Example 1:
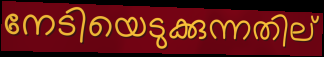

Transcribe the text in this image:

നേടിയെടുക്കുന്നതില്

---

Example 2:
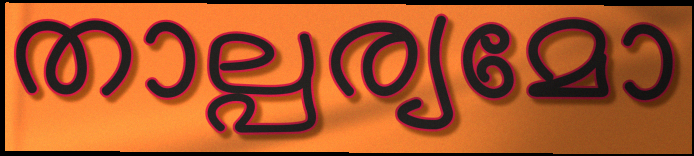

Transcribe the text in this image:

താല്പര്യമോ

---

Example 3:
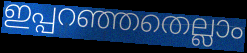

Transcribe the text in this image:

ഇപ്പറഞ്ഞതെല്ലാം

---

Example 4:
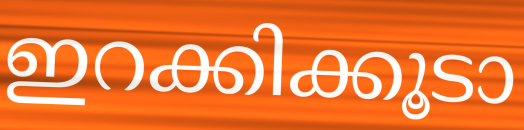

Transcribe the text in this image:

ഇറക്കിക്കൂടാ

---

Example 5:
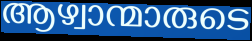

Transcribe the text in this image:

ആഴ്വാന്മാരുടെ